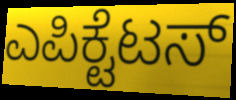
ಎಪಿಕ್ಟೆಟಸ್